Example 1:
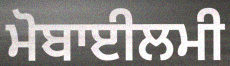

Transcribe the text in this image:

ਮੋਬਾਈਲਮੀ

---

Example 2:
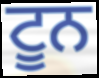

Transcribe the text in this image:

ਟੂਨ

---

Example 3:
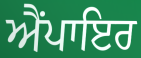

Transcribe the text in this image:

ਐੰਪਾਇਰ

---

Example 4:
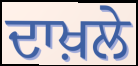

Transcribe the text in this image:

ਦਾਖ਼ਲੇ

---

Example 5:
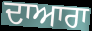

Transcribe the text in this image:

ਦਾਆਰਾ